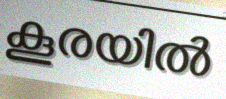
കൂരയിൽ